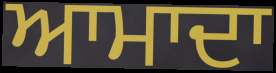
ਆਮਾਦਾ